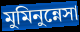
মুমিনুন্নেসা